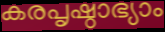
കരപൃഷ്ഠാഭ്യാം